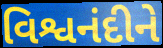
વિશ્વનંદીને